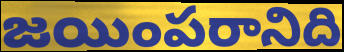
జయింపరానిది